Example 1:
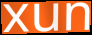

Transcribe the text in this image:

xun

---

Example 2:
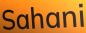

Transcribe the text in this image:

Sahani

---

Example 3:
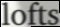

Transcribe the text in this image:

lofts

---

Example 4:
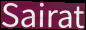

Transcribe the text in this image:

Sairat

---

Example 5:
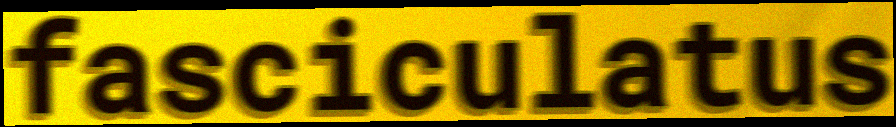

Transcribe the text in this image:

fasciculatus